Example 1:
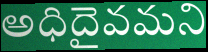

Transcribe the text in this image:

అధిదైవమని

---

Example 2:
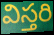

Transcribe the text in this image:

విస్తరి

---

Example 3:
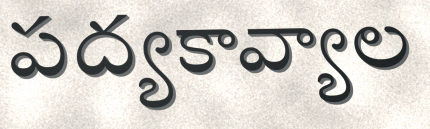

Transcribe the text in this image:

పద్యకావ్యాల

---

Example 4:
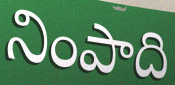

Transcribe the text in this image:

నింపాది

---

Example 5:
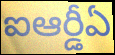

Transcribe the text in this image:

ఐఆర్డీఏ